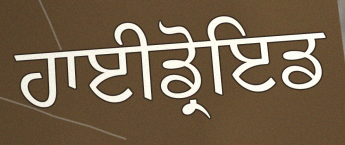
ਹਾਈਡ੍ਰੋਇਡ